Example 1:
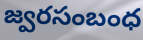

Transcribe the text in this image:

జ్వరసంబంధ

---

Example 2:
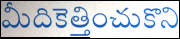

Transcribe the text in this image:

మీదికెత్తించుకొని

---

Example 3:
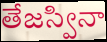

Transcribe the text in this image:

తేజస్వినా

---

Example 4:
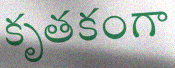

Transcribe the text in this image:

కృతకంగా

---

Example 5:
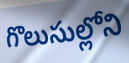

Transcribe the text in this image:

గొలుసుల్లోని